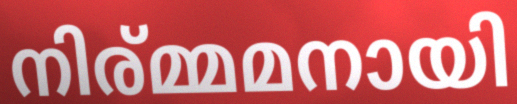
നിര്മ്മമനായി